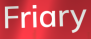
Friary